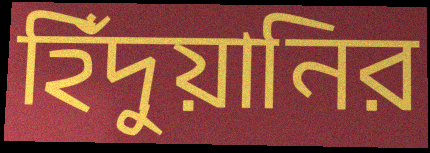
হিঁদুয়ানির